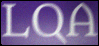
LQA